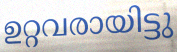
ഉറ്റവരായിട്ടു